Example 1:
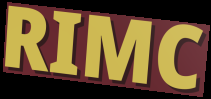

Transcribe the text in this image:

RIMC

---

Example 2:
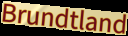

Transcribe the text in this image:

Brundtland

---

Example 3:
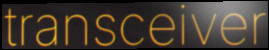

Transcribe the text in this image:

transceiver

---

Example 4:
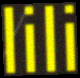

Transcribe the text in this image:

lili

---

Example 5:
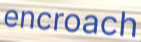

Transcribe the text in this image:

encroach